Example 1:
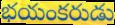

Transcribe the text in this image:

భయంకరుడు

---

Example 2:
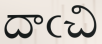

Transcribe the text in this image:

దాఁచి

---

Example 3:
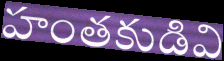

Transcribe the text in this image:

హంతకుడివి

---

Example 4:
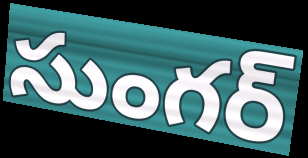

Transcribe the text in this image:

సుంగర్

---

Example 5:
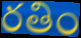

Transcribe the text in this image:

రతిం